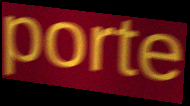
porte